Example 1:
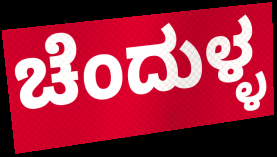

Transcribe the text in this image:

ಚೆಂದುಳ್ಳ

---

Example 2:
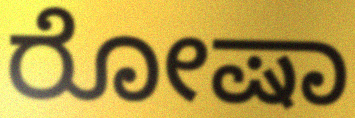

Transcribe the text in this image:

ರೋಷಾ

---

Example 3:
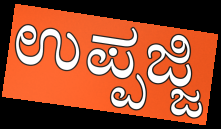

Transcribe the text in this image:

ಉಪ್ಪಜ್ಜಿ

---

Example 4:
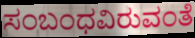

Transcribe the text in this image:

ಸಂಬಂಧವಿರುವಂತೆ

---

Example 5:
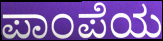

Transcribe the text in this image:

ಪಾಂಪೆಯ